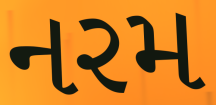
નરમ